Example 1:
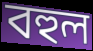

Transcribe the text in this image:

বহুল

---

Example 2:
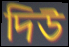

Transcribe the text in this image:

দিউ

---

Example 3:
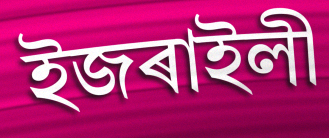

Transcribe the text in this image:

ইজৰাইলী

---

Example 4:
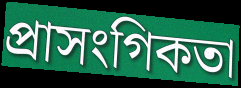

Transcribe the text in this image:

প্ৰাসংগিকতা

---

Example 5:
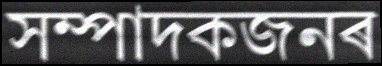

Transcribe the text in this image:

সম্পাদকজনৰ